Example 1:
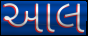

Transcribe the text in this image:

આલ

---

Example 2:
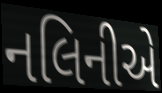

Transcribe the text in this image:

નલિનીએ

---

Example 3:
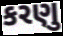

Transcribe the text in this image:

કરણુ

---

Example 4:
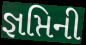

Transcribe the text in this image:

જ્ઞપ્તિની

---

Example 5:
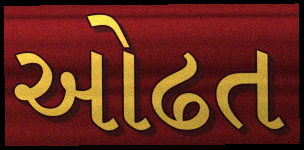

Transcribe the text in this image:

ઓઢત